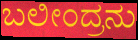
ಬಲೀಂದ್ರನು